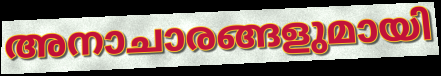
അനാചാരങ്ങളുമായി